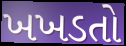
ખખડતો